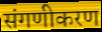
संगणीकरण